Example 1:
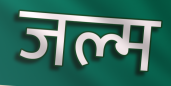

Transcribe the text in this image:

जल्म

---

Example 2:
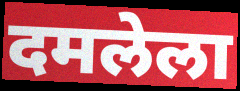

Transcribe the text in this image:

दमलेला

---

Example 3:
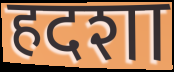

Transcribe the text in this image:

हदशा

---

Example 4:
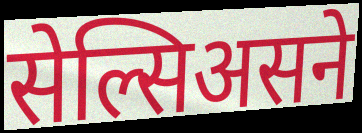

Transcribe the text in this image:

सेल्सिअसने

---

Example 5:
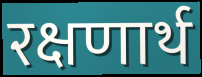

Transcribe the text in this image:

रक्षणार्थ